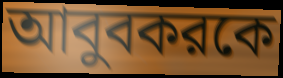
আবুবকরকে